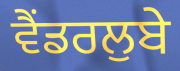
ਵੈਂਡਰਲੁਬੇ